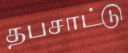
தபசாட்டு